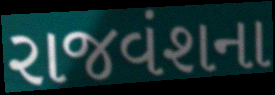
રાજવંશના